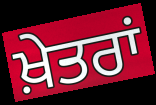
ਖ਼ੇਤਰਾਂ